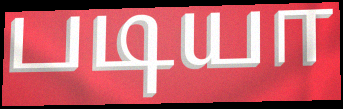
படியா